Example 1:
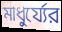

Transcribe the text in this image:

মাধুর্য্যের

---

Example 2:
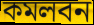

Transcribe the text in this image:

কমলবন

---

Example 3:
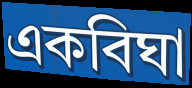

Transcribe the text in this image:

একবিঘা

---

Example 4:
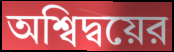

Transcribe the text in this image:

অশ্বিদ্বয়ের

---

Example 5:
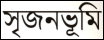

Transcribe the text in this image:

সৃজনভূমি